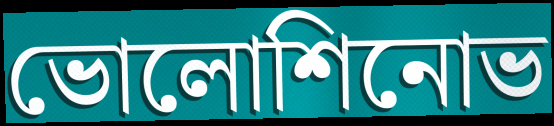
ভোলোশিনোভ